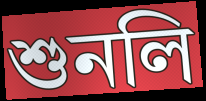
শুনলি